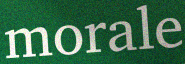
morale